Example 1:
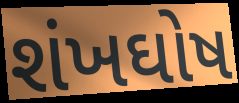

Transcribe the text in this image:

શંખઘોષ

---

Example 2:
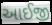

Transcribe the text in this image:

આઈજી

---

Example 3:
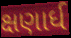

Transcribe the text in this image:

ક્ષણાર્ધ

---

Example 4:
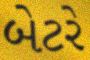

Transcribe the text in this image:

બેટરે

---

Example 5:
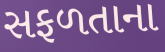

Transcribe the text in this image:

સફળતાના